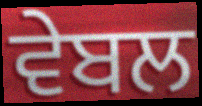
ਵੇਬਲ